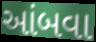
આંબવા